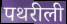
पथरीली